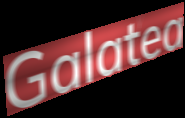
Galatea